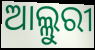
ଆଲ୍ଲୁରୀ